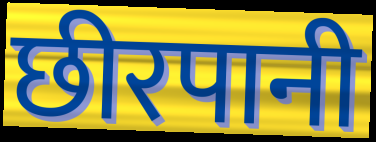
छीरपानी